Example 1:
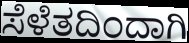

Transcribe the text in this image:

ಸೆಳೆತದಿಂದಾಗಿ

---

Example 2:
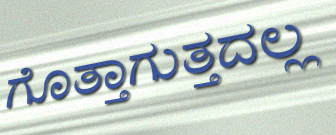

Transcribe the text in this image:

ಗೊತ್ತಾಗುತ್ತದಲ್ಲ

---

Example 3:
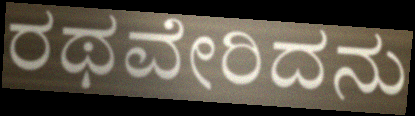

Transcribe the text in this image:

ರಥವೇರಿದನು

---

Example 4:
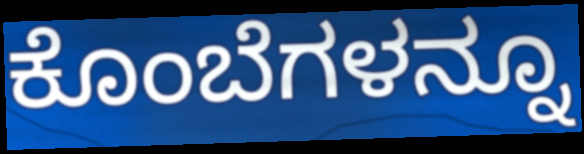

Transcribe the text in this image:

ಕೊಂಬೆಗಳನ್ನೂ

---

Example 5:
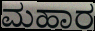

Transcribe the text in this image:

ಮಹಾರ